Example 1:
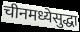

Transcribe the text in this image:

चीनमध्येसुद्धा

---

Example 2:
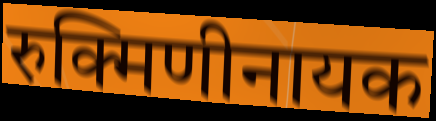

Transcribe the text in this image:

रुक्मिणीनायक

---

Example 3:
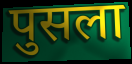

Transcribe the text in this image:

पुसला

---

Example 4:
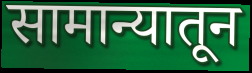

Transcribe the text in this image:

सामान्यातून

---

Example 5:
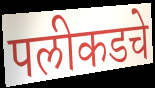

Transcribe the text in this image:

पलीकडचे